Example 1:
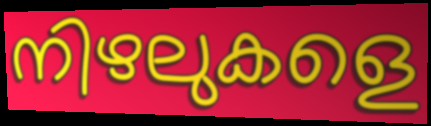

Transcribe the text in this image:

നിഴലുകളെ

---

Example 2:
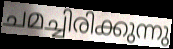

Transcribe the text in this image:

ചമച്ചിരിക്കുന്നു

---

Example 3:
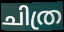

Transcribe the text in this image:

ചിത്ര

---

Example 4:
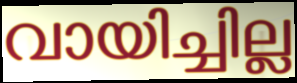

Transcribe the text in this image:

വായിച്ചില്ല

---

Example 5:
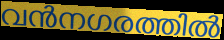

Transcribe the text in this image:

വൻനഗരത്തിൽ